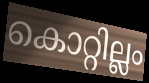
കൊറ്റില്ലം